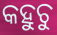
କହୁଚୁ